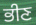
ਭੀਣ